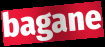
bagane